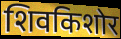
शिवकिशोर